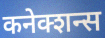
कनेक्शन्स